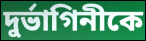
দুর্ভাগিনীকে